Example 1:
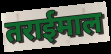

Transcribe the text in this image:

तराईमाल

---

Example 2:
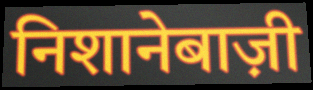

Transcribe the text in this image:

निशानेबाज़ी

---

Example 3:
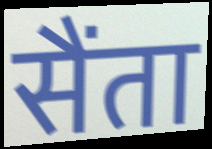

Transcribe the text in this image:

सैंता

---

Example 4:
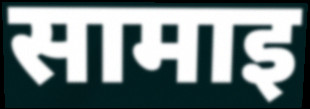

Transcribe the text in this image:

सामाइ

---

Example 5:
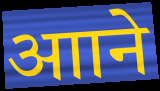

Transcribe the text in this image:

आाने